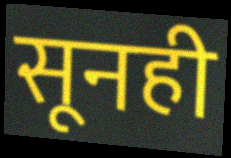
सूनही